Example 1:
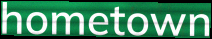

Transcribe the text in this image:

hometown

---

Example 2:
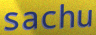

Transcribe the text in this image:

sachu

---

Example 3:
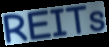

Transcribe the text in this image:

REITs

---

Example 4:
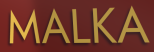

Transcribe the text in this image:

MALKA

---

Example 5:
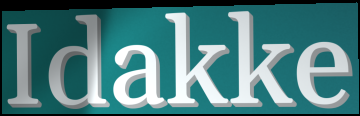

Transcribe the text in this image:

Idakke